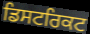
ਡਿਸਟਰਿਕਟ